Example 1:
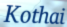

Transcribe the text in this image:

Kothai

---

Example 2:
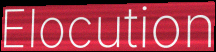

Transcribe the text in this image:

Elocution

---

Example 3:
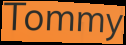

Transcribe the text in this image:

Tommy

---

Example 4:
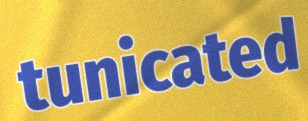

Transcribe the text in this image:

tunicated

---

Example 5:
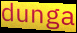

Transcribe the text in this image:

dunga